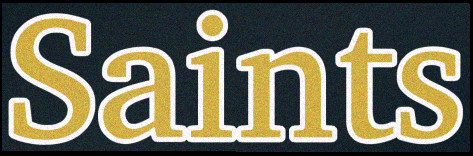
Saints